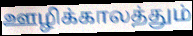
ஊழிக்காலத்தும்